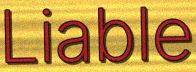
Liable